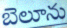
బెలూను